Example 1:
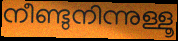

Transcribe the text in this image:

നീണ്ടുനിന്നുള്ളൂ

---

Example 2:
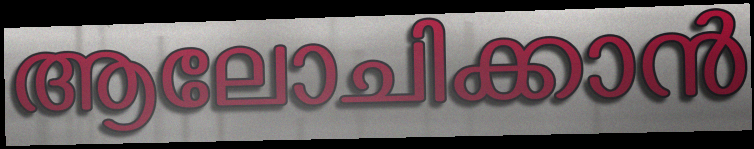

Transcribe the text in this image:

ആലോചിക്കാൻ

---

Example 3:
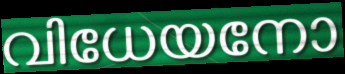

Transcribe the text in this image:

വിധേയനോ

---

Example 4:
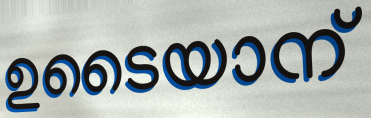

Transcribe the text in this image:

ഉടൈയാന്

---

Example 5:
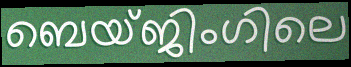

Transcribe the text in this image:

ബെയ്ജിംഗിലെ